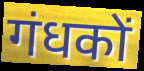
गंधकों